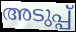
അടുപ്പ്